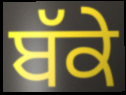
ਬੱਕੇ